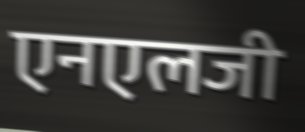
एनएलजी